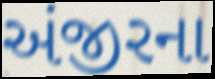
અંજીરના